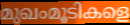
മുഖംമൂടികളെ